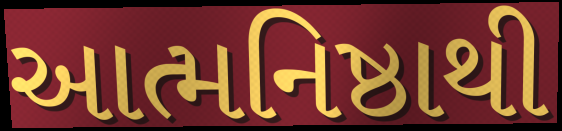
આત્મનિષ્ઠાથી